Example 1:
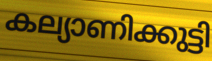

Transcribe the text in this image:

കല്യാണിക്കുട്ടി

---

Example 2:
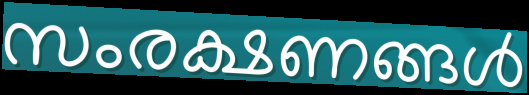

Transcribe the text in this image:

സംരക്ഷണങ്ങൾ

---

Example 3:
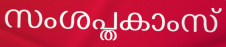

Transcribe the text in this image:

സംശപ്തകാംസ്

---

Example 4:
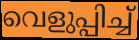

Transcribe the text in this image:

വെളുപ്പിച്ച്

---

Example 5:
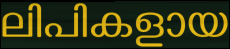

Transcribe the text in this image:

ലിപികളായ